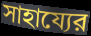
সাহায্য়ের